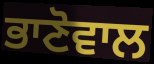
ਭਾਣੋਵਾਲ